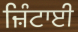
ਜ਼ਿੰਟਾਈ